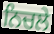
ਨਿਚਲੇ